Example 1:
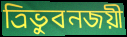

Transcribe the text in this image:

ত্রিভুবনজয়ী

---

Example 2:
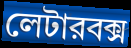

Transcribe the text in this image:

লেটারবক্স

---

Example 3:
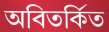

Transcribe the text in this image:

অবিতর্কিত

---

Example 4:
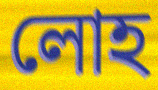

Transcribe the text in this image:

লোহ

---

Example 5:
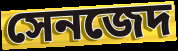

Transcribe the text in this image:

সেনজেদ